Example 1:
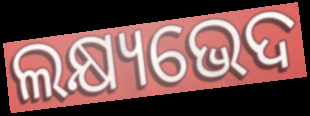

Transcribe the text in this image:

ଲକ୍ଷ୍ୟଭେଦ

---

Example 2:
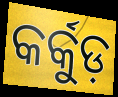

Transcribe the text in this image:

କର୍କୁଡ଼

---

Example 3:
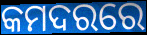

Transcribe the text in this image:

କମଦରରେ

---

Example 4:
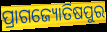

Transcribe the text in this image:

ପ୍ରାଗଜ୍ୟୋତିଷପୁର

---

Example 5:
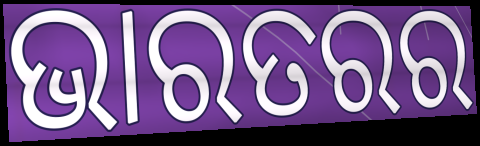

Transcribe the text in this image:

ଭାରତରର